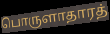
பொருளாதாரத்